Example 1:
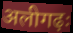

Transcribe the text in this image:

अलीगढ़ः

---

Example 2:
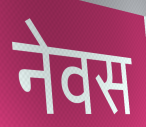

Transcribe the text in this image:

नेवस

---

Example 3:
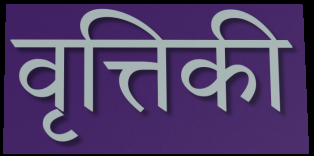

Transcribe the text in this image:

वृत्तिकी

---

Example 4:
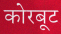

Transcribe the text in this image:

कोरबूट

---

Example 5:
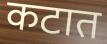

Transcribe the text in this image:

कटात